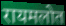
रायमलोत